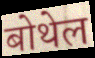
बोथेल